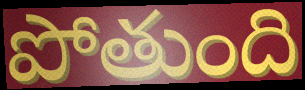
పోతుంది